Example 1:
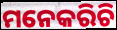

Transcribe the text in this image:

ମନେକରିଚି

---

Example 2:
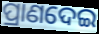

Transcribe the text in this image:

ପ୍ରାଣଦେଇ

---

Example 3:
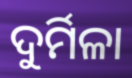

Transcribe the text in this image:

ଦୁର୍ମିଳା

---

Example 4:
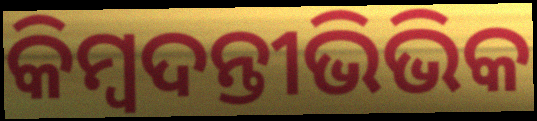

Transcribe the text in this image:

କିମ୍ବଦନ୍ତୀଭିଭିକ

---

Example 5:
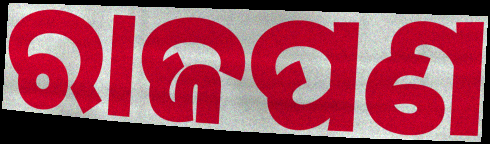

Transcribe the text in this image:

ରାଜପଣ